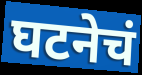
घटनेचं